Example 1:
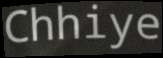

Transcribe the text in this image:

Chhiye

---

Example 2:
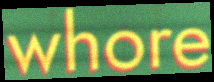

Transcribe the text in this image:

whore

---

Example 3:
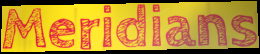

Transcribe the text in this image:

Meridians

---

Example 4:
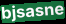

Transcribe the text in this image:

bjsasne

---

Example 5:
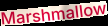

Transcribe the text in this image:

Marshmallow